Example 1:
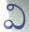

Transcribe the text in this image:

వి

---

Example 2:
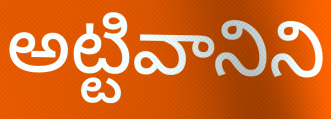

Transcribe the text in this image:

అట్టివానిని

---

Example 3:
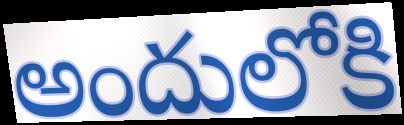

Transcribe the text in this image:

అందులోకి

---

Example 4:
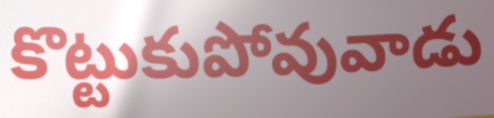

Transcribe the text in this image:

కొట్టుకుపోవువాడు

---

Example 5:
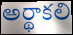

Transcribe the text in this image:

అర్థాకలి